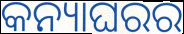
କନ୍ୟାଘରର